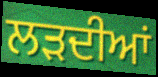
ਲੜਦੀਆਂ